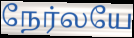
நேர்லயே